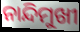
ନାନ୍ଦିମୁଖୀ